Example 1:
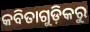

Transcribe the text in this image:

କବିତାଗୁଡ଼ିକରୁ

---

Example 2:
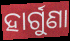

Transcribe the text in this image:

ହାର୍ଗୁଣା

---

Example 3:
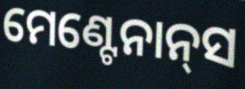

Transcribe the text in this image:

ମେଣ୍ଟେନାନ୍‌ସ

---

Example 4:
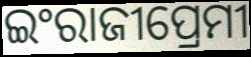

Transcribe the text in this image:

ଇଂରାଜୀପ୍ରେମୀ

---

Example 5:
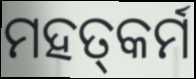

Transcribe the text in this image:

ମହତ୍‌କର୍ମ